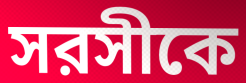
সরসীকে